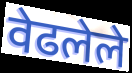
वेढलेले